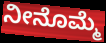
ನೀನೊಮ್ಮೆ